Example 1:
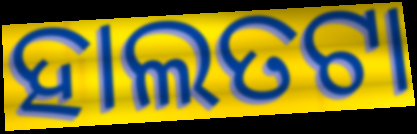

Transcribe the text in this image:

ହାଲତଟା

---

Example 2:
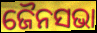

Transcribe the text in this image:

ଜୈନସଭା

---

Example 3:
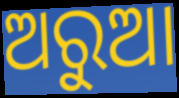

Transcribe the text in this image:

ଅରୁଆ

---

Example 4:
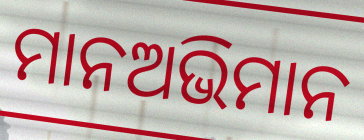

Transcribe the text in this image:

ମାନଅଭିମାନ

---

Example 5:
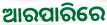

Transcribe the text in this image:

ଆରପାରିରେ